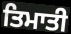
ਤਿਮਾਤੀ